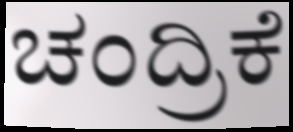
ಚಂದ್ರಿಕೆ